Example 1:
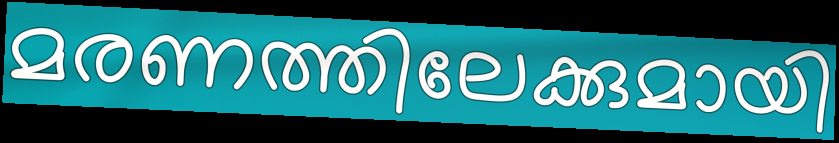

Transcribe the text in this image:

മരണത്തിലേക്കുമായി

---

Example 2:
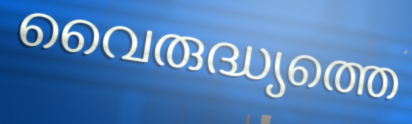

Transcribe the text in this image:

വൈരുദ്ധ്യത്തെ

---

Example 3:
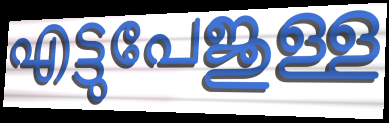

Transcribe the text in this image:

എട്ടുപേജുള്ള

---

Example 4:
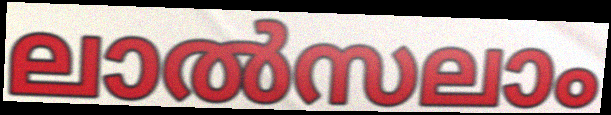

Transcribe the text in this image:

ലാൽസലാം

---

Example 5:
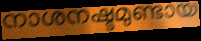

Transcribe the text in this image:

നാശനഷ്ടമുണ്ടായ